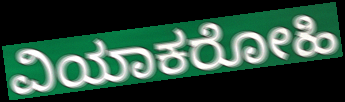
ವಿಯಾಕರೋಹಿ